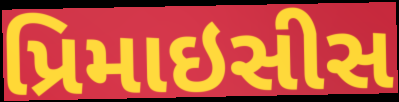
પ્રિમાઇસીસ